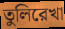
তুলিরেখা